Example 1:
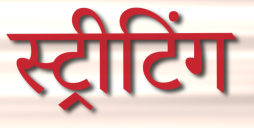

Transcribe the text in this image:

स्ट्रीटिंग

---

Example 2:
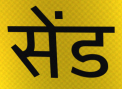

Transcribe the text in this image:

सेंड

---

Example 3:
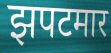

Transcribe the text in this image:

झपटमार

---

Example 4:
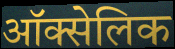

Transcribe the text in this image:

ऑक्सेलिक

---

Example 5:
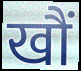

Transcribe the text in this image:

खौं